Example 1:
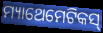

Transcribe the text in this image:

ମ୍ୟାଥେମେଟିକସ୍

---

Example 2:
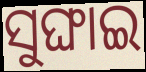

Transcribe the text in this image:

ସୁଙ୍ଘାଇ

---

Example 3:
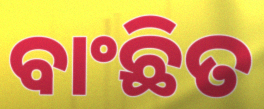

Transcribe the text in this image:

ବାଂଛିତ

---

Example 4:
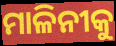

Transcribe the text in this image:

ମାଳିନୀକୁ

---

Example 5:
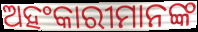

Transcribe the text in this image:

ଅହଂକାରୀମାନଙ୍କ